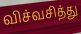
விச்வசித்து